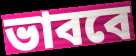
ভাববে